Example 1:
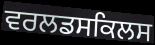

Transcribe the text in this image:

ਵਰਲਡਸਕਿਲਸ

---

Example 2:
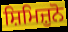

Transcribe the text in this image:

ਸ਼ਿਮਿਜ਼ੁਨੋ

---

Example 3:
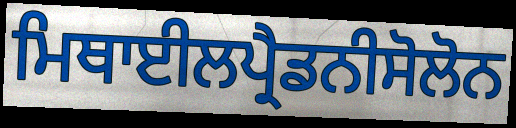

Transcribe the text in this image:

ਮਿਥਾਈਲਪ੍ਰੈਡਨੀਸੋਲੋਨ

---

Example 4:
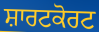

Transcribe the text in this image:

ਸ਼ਾਰਟਕੋਰਟ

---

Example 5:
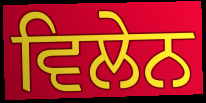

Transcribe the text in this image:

ਵਿਲੇਨ